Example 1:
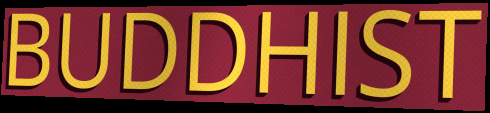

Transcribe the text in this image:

BUDDHIST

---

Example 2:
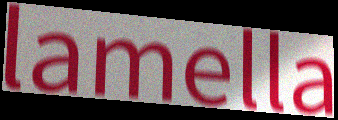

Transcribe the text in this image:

lamella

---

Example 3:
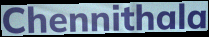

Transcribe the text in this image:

Chennithala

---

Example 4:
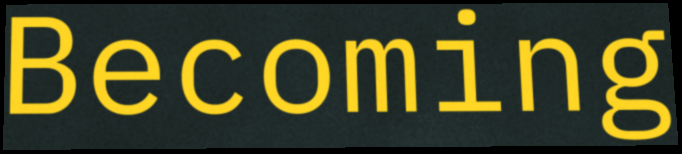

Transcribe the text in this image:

Becoming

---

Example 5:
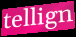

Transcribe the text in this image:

tellign